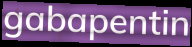
gabapentin